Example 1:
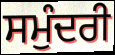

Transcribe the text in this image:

ਸਮੁੰਦਰੀ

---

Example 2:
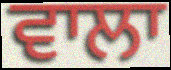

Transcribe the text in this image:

ਵਾਲਾ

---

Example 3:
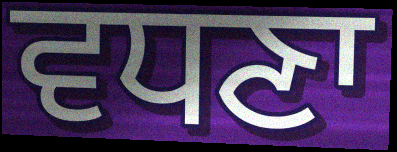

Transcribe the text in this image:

ਵਧਣਾ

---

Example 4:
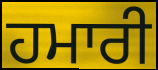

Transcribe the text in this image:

ਹਮਾਰੀ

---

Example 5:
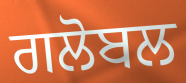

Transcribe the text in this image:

ਗਲੋਬਲ